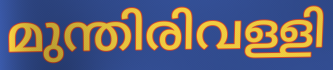
മുന്തിരിവള്ളി